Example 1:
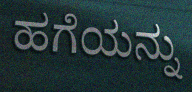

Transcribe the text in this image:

ಹಗೆಯನ್ನು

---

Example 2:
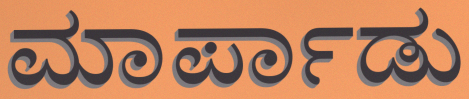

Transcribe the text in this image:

ಮಾರ್ಪಾಡು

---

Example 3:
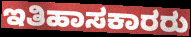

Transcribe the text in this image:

ಇತಿಹಾಸಕಾರರು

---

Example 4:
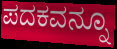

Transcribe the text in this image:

ಪದಕವನ್ನೂ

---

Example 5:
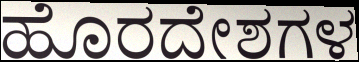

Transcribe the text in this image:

ಹೊರದೇಶಗಳ